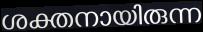
ശക്തനായിരുന്ന